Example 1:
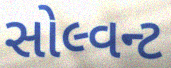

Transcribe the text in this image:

સોલ્વન્ટ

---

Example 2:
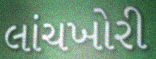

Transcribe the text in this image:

લાંચખોરી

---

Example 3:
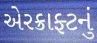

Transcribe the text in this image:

એરક્રાફ્ટનું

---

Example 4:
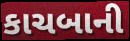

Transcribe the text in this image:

કાચબાની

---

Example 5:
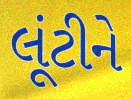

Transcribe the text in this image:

લૂંટીને